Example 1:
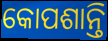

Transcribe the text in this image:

କୋପଶାନ୍ତି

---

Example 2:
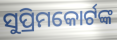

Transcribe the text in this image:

ସୁପ୍ରିମକୋର୍ଟଙ୍କ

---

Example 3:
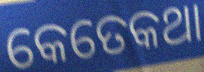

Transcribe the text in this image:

କେତେକଥା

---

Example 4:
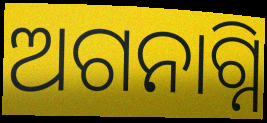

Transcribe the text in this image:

ଅଗନାଗ୍ନି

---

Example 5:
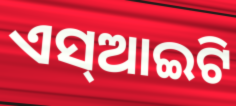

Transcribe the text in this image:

ଏସ୍ଆଇଟି